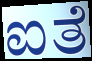
ಐತೆ